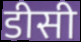
डीसी